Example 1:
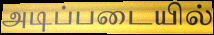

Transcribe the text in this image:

அடிப்படையில்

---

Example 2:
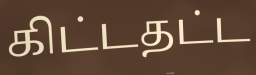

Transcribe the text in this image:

கிட்டதட்ட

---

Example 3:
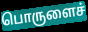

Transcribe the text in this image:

பொருளைச்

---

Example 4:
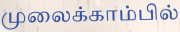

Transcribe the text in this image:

முலைக்காம்பில்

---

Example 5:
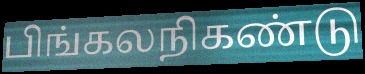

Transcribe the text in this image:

பிங்கலநிகண்டு